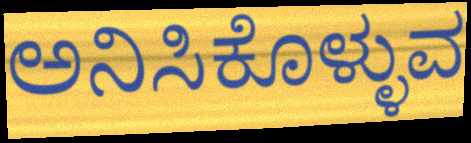
ಅನಿಸಿಕೊಳ್ಳುವ